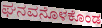
ಘನವನೊಳಕೊಂಡ